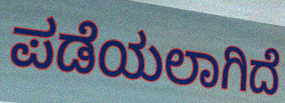
ಪಡೆಯಲಾಗಿದೆ